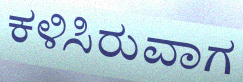
ಕಳಿಸಿರುವಾಗ